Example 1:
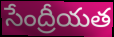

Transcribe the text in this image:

సేంద్రీయత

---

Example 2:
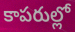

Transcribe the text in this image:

కాపరుల్లో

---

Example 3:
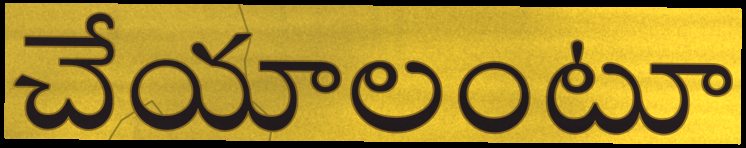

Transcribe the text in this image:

చేయాలంటూ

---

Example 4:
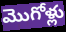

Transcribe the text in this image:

మొగోళ్లు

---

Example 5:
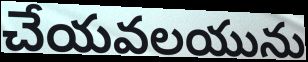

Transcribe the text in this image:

చేయవలయును